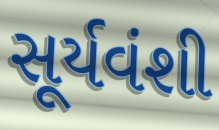
સૂર્યવંશી